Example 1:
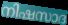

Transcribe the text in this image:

നിഷസാദ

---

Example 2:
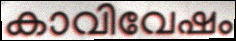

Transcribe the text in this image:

കാവിവേഷം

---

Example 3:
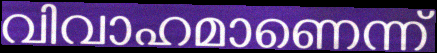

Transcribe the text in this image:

വിവാഹമാണെന്ന്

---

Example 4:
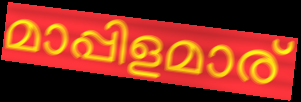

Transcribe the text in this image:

മാപ്പിളമാര്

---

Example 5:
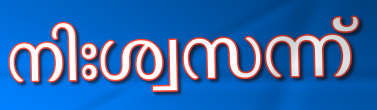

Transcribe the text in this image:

നിഃശ്വസന്ന്